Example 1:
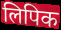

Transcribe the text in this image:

लिपिक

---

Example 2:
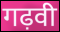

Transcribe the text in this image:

गढ़वी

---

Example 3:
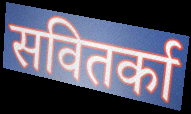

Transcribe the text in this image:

सवितर्का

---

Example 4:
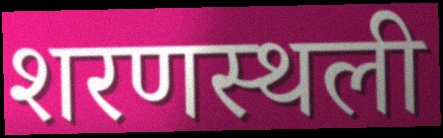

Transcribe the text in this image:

शरणस्थली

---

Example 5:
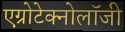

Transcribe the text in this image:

एग्रोटेक्नोलॉजी